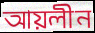
আয়লীন